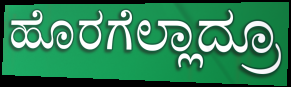
ಹೊರಗೆಲ್ಲಾದ್ರೂ